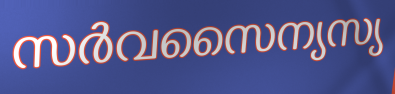
സർവസൈന്യസ്യ